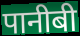
पानीबी